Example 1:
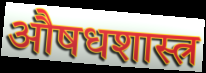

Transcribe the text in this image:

औषधशास्त्र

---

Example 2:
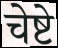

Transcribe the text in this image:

चेष्टे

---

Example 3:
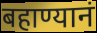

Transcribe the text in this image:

बहाण्यानं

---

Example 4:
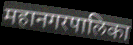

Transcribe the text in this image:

महानगरपालिका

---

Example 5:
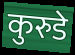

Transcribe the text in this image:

कुरुडे